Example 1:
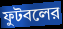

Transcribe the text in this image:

ফুটবলের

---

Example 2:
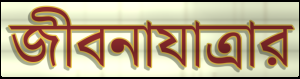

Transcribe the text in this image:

জীবনাযাত্রার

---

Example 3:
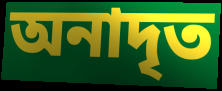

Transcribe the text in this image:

অনাদৃত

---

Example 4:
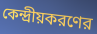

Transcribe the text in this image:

কেন্দ্রীয়করণের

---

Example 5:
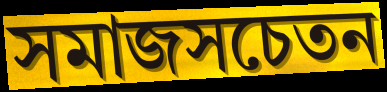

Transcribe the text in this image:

সমাজসচেতন